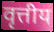
वृत्तीय